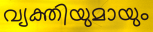
വ്യക്തിയുമായും